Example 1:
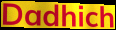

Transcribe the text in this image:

Dadhich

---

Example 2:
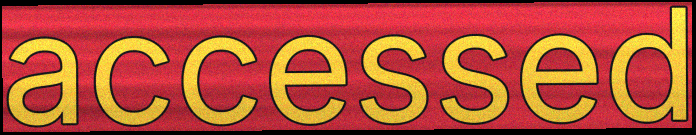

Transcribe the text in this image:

accessed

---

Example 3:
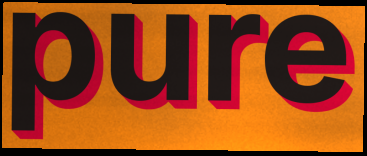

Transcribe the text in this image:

pure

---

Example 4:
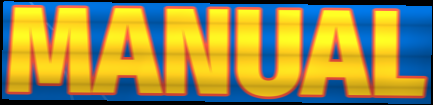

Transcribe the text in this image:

MANUAL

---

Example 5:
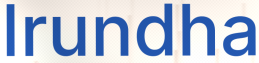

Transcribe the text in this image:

Irundha